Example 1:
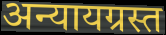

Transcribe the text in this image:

अन्यायग्रस्त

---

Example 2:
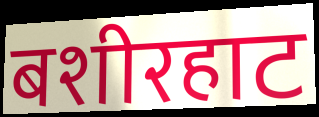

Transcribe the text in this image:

बशीरहाट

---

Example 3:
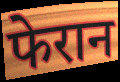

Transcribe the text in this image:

फेरान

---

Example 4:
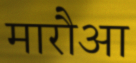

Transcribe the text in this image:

मारौआ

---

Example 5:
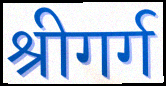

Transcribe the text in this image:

श्रीगर्ग